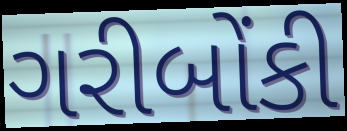
ગરીબોંકી